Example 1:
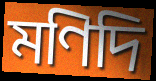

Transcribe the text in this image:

মণিদি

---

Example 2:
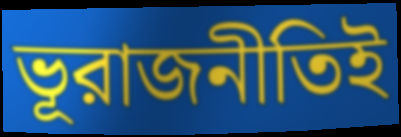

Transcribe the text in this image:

ভূরাজনীতিই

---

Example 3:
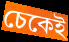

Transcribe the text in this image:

চেকেই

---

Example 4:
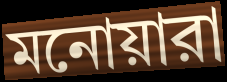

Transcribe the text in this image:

মনোয়ারা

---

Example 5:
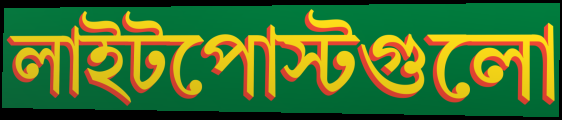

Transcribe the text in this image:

লাইটপোস্টগুলো